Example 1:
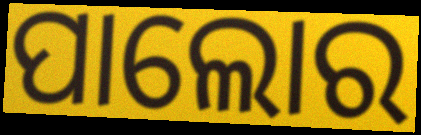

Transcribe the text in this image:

ପାଲୋର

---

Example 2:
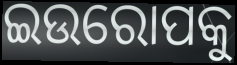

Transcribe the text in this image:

ଇଉରୋପକୁ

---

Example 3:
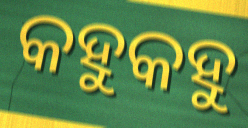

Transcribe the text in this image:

କହୁକହୁ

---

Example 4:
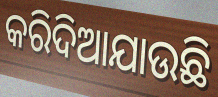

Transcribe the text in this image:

କରିଦିଆଯାଉଛି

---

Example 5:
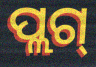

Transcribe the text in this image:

ପ୍ଲଗ୍